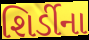
શિર્ડીના